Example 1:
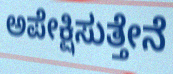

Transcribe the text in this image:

ಅಪೇಕ್ಷಿಸುತ್ತೇನೆ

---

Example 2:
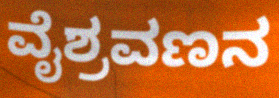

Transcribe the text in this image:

ವೈಶ್ರವಣನ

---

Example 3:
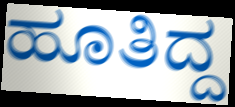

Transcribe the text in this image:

ಹೂತಿದ್ದ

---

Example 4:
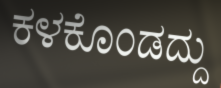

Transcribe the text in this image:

ಕಳಕೊಂಡದ್ದು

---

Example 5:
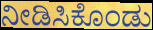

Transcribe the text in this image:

ನೀಡಿಸಿಕೊಂಡು